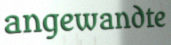
angewandte